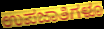
ಉಪಜಾತಿಗಳೂ